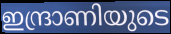
ഇന്ദ്രാണിയുടെ